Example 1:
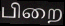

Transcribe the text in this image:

பிறை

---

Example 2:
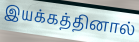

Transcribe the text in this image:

இயக்கத்தினால்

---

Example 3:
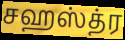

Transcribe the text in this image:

சஹஸ்த்ர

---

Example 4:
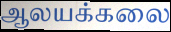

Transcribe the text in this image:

ஆலயக்கலை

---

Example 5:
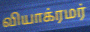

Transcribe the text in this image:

வியாக்ரமர்